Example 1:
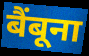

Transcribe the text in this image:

बैंबूना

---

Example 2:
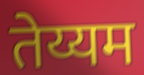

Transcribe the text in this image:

तेय्यम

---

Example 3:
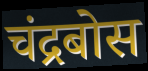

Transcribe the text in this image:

चंद्रबोस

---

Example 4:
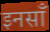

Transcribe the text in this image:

इनसाँ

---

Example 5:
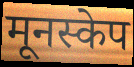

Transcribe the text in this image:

मूनस्केप